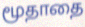
மூதாதை